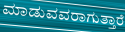
ಮಾಡುವವರಾಗುತ್ತಾರೆ